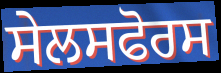
ਸੇਲਸਫੋਰਸ